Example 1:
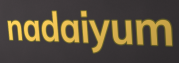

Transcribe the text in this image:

nadaiyum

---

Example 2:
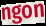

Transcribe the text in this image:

ngon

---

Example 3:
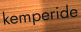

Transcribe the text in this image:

kemperide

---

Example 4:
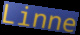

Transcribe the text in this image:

Linne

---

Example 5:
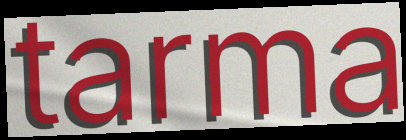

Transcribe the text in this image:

tarma